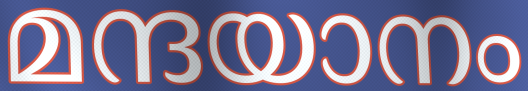
മന്ദയാനം